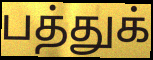
பத்துக்